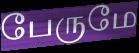
பேருமே